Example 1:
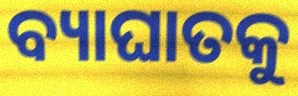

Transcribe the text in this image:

ବ୍ୟାଘାତକୁ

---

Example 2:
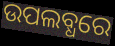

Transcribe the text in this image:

ଉପଲବ୍ଧରେ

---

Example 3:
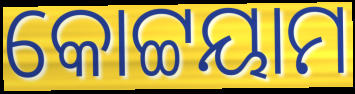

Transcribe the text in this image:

କୋଟ୍ଟୟାମ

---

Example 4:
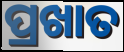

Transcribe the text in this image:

ପ୍ରଖାତ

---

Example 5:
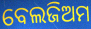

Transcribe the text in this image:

ବେଲଜିଅମ